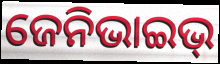
ଜେନିଭାଇଭ୍